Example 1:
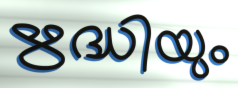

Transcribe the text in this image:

ഋദ്ധിയും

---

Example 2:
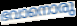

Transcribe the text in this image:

ഭവാനൊരു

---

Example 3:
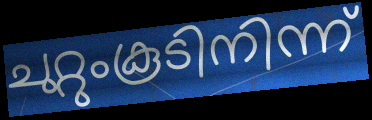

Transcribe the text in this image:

ചുറ്റുംകൂടിനിന്ന്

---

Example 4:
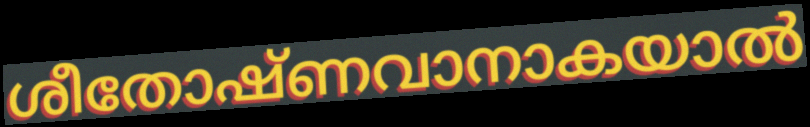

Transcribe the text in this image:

ശീതോഷ്ണവാനാകയാൽ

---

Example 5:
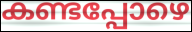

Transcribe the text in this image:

കണ്ടപ്പോഴെ